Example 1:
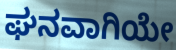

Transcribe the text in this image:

ಘನವಾಗಿಯೇ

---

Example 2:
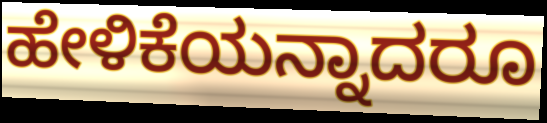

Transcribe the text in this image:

ಹೇಳಿಕೆಯನ್ನಾದರೂ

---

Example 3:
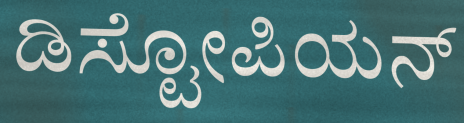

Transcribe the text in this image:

ಡಿಸ್ಟೋಪಿಯನ್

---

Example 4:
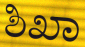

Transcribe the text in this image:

ಶಿಖಾ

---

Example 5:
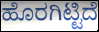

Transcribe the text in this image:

ಹೊರಗಿಟ್ಟಿದೆ